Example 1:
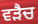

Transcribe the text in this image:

ਵੜੈਚ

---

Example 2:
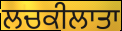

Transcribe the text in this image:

ਲਚਕੀਲਾਤਾ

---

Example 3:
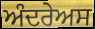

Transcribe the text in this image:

ਅੰਦਰੇਅਸ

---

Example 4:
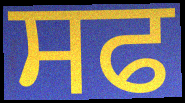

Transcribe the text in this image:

ਸਫ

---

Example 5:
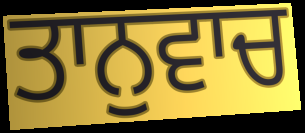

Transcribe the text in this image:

ਤਾਨੁਵਾਚ